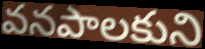
వనపాలకుని